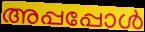
അപ്പപ്പോൾ